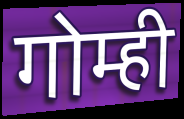
गोम्ही